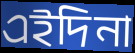
এইদিনা